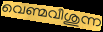
വെണ്മവീശുന്ന